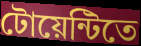
টোয়েন্টিতে